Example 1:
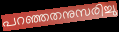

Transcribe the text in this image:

പറഞ്ഞതനുസരിച്ചു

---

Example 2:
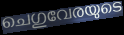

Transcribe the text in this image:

ചെഗുവേരയുടെ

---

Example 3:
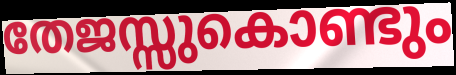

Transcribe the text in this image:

തേജസ്സുകൊണ്ടും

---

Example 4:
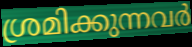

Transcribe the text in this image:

ശ്രമിക്കുന്നവർ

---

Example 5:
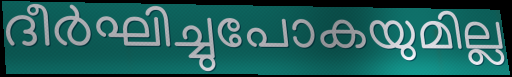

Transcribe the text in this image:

ദീർഘിച്ചുപോകയുമില്ല